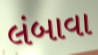
લંબાવા